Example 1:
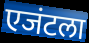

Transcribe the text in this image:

एजंटला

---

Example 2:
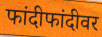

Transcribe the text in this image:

फांदीफांदीवर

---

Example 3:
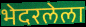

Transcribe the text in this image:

भेदरलेला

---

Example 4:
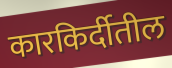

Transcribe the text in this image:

कारकिर्दीतील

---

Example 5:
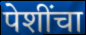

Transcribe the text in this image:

पेशींचा